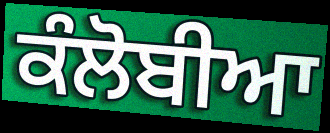
ਕੰਲੋਬੀਆ